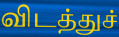
விடத்துச்